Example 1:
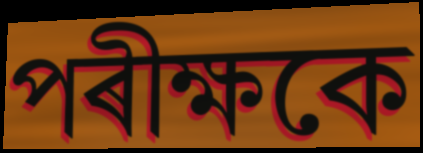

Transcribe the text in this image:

পৰীক্ষকে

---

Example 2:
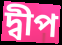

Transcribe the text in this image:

দ্বীপ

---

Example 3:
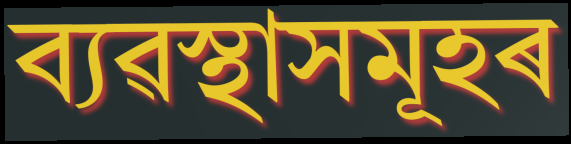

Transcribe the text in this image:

ব্যৱস্থাসমূহৰ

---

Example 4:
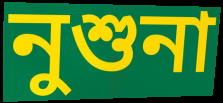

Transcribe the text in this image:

নুশুনা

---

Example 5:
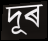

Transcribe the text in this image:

দূৰ